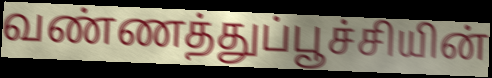
வண்ணத்துப்பூச்சியின்